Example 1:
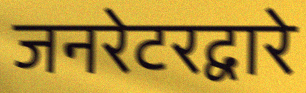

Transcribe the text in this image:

जनरेटरद्वारे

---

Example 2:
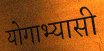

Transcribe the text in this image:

योगाभ्यासी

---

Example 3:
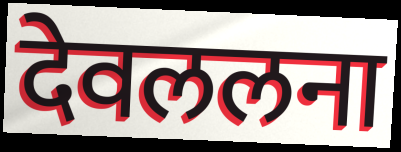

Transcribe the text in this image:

देवललना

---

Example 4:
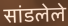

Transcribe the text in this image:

सांडलेले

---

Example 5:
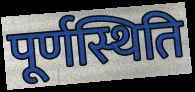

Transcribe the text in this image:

पूर्णस्थिति